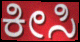
ಕೀಸಿ